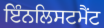
ਇੰਨਲਿਸਟਮੈਂਟ